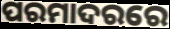
ପରମାଦରରେ